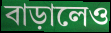
বাড়ালেও